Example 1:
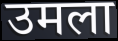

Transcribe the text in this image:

उमला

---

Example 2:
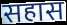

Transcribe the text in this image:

सहास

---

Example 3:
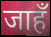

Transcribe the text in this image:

जाहँ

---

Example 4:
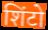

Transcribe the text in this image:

शिंटो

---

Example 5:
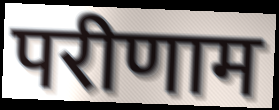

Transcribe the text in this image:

परीणाम